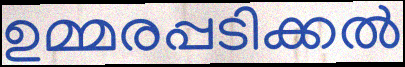
ഉമ്മരപ്പടിക്കൽ